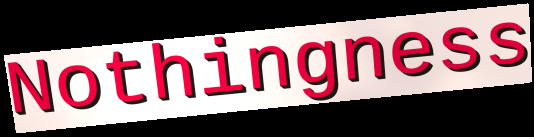
Nothingness